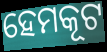
ହେମକୂଟ